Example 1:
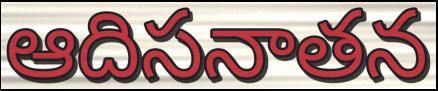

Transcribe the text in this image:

ఆదిసనాతన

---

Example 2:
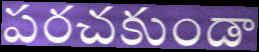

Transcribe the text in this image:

పరచకుండా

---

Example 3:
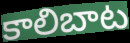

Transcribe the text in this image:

కాలిబాట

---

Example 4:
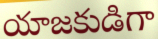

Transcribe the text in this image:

యాజకుడిగా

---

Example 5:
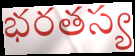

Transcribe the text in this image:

భరతస్య